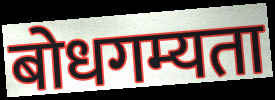
बोधगम्यता